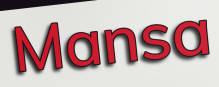
Mansa